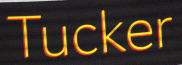
Tucker